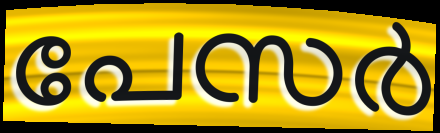
പേസർ